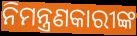
ନିମନ୍ତ୍ରଣକାରୀଙ୍କ